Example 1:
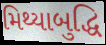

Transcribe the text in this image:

મિથ્યાબુદ્ધિ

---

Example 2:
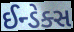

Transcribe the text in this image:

ઈન્ડેક્સ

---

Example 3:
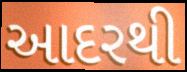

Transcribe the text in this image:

આદરથી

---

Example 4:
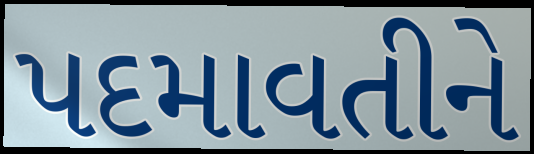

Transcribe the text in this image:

પદમાવતીને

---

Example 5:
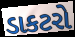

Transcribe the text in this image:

ડાકટરો